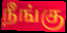
நீங்கு